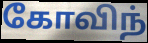
கோவிந்